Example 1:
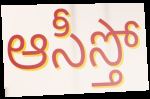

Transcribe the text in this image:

ఆసీస్తో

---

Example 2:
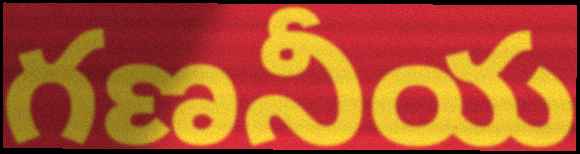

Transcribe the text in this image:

గణనీయ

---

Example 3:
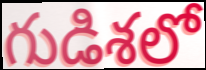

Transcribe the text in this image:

గుడిశలో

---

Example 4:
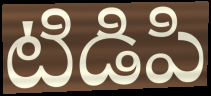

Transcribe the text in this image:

టిడిపి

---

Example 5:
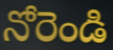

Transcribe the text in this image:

నోరెండి